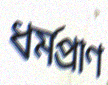
ধৰ্মপ্ৰাণ